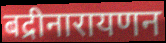
बद्रीनारायणन